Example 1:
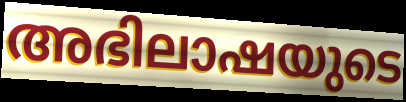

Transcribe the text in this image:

അഭിലാഷയുടെ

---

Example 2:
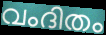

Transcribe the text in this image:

വംദിതം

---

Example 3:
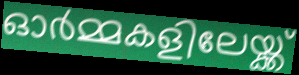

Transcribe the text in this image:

ഓർമ്മകളിലേയ്ക്ക്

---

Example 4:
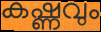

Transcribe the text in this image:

കഷ്ണവും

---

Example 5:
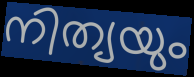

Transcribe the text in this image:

നിത്യയും